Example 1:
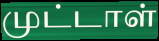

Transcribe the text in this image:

முட்டாள்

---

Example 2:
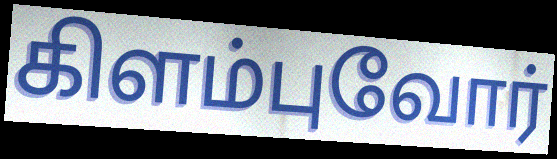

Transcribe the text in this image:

கிளம்புவோர்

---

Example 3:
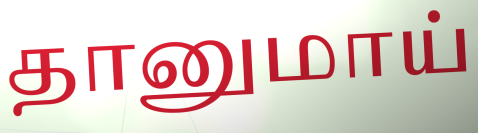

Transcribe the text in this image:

தானுமாய்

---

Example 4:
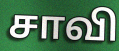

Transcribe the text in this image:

சாவி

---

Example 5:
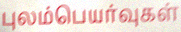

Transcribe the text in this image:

புலம்பெயர்வுகள்